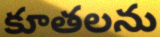
కూతలను